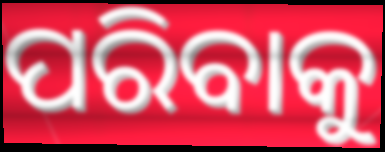
ପରିବାକୁ